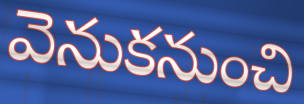
వెనుకనుంచి